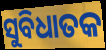
ସୁବିଧାତକ